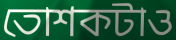
তোশকটাও